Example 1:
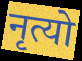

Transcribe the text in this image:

नृत्यो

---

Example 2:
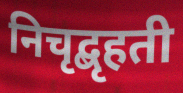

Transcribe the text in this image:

निचृद्बृहती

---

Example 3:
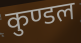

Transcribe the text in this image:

कुण्डल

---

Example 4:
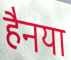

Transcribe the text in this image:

हैनया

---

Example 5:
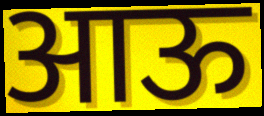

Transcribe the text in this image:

आऊ